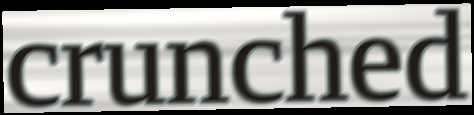
crunched